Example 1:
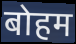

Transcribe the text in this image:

बोहम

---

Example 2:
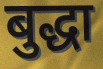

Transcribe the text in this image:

बुद्धा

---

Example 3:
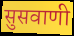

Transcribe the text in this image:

सुसवाणी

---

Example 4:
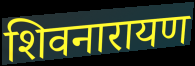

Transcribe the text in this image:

शिवनारायण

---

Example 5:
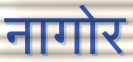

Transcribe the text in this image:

नागोर